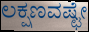
ಲಕ್ಷಣವಷ್ಟೇ